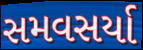
સમવસર્યા